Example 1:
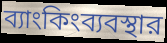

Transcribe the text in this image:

ব্যাংকিংব্যবস্থার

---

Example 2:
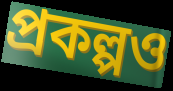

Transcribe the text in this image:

প্রকল্পও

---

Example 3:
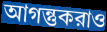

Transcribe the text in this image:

আগন্তুকরাও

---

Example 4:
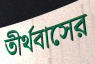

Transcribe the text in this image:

তীর্থবাসের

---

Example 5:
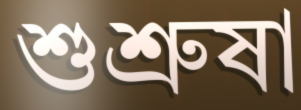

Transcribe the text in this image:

শুশ্রুষা